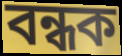
বন্ধক